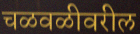
चळवळीवरील